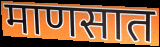
माणसात